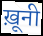
ख़ूनी